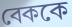
বেককে